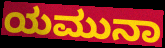
ಯಮುನಾ